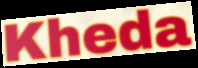
Kheda